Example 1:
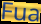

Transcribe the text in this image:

Fua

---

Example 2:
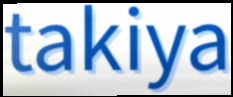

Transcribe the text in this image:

takiya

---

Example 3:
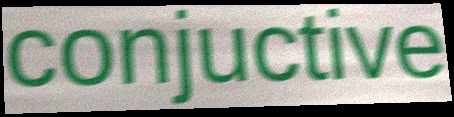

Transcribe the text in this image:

conjuctive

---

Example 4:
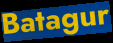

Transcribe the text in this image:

Batagur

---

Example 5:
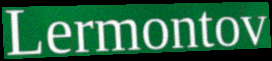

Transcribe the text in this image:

Lermontov